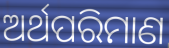
ଅର୍ଥପରିମାଣ